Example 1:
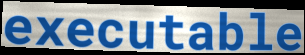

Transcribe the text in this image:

executable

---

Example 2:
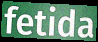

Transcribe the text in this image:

fetida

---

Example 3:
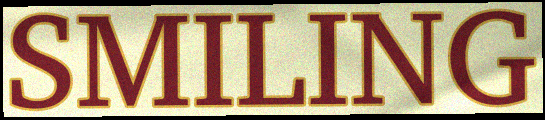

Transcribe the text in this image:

SMILING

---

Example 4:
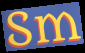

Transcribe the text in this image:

Sm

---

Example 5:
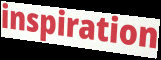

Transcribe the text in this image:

inspiration